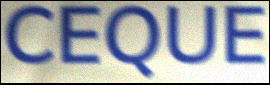
CEQUE